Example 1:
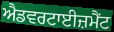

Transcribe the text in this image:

ਐਡਵਰਟਾਈਜ਼ਮੈਂਟ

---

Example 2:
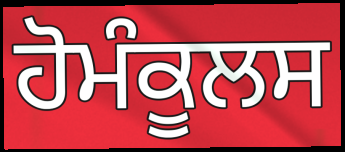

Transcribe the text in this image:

ਹੋਮੰਕੂਲਸ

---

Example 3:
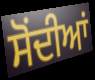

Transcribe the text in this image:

ਸੋਂਦੀਆਂ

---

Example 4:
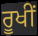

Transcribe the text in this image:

ਰੂਖੀਂ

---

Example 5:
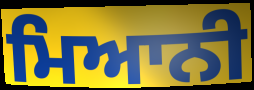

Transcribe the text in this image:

ਮਿਆਨੀ